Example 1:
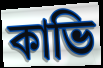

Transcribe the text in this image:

কাভি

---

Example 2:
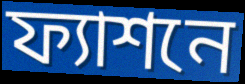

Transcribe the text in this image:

ফ্যাশনে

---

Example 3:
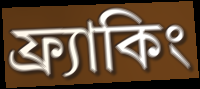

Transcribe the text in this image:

ফ্র্যাকিং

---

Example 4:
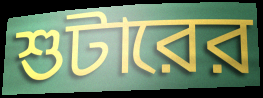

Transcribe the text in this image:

শুটারের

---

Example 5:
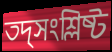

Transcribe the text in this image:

তদ্‌সংশ্লিষ্ট